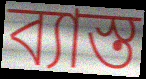
ব্যাস্ত